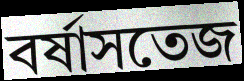
বর্ষাসতেজ